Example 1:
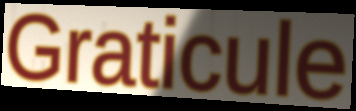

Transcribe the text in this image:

Graticule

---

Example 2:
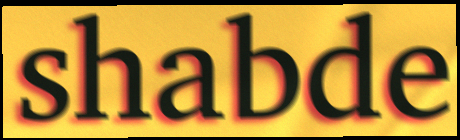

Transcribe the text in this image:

shabde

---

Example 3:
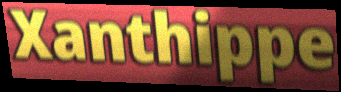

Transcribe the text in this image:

Xanthippe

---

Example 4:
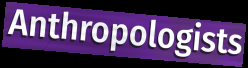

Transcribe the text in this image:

Anthropologists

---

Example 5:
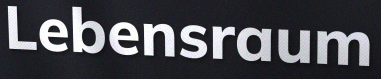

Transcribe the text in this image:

Lebensraum